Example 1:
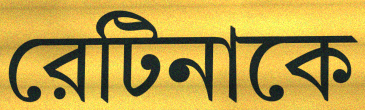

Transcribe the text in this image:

রেটিনাকে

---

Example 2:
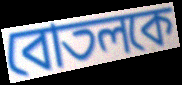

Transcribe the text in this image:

বোতলকে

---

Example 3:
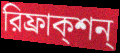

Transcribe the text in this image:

রিফ্রাক্শন্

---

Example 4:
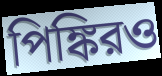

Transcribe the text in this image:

পিঙ্কিরও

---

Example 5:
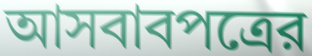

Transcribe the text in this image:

আসবাবপত্রের